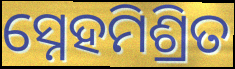
ସ୍ନେହମିଶ୍ରିତ